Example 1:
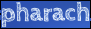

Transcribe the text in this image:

pharach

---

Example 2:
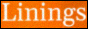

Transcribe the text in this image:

Linings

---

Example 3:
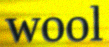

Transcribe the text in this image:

wool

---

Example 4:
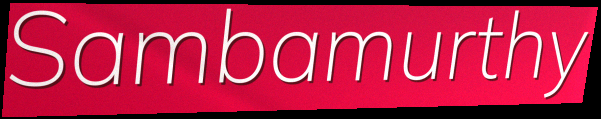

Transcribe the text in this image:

Sambamurthy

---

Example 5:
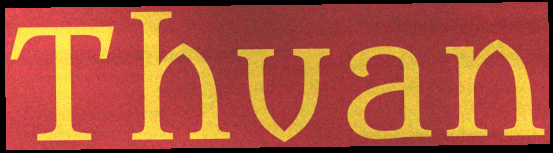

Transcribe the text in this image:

Thuan